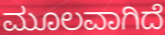
ಮೂಲವಾಗಿದೆ